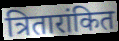
त्रितारांकित